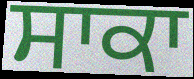
ਸਾਕਾ